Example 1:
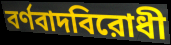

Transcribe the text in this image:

বর্ণবাদবিরোধী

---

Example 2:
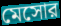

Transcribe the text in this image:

মেসোর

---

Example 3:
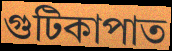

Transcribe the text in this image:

গুটিকাপাত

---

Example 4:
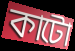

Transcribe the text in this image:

কাটো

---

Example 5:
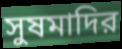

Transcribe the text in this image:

সুষমাদির